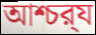
আশ্চর্‍য